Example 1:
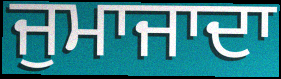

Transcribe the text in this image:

ਜੁਮਾਜਾਦਾ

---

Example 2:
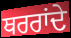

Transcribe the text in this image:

ਥਰਰਾਂਦੇ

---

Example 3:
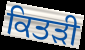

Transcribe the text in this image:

ਕਿਤੜੀ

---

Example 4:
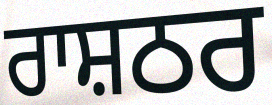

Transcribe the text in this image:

ਰਾਸ਼ਠਰ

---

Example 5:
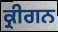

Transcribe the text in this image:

ਕ੍ਰੀਗਨ